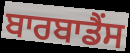
ਬਾਰਬਾਡੈਂਸ